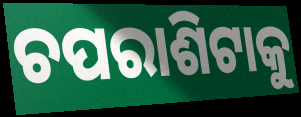
ଚପରାଶିଟାକୁ